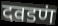
दवडणं